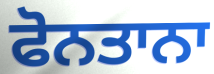
ਫੋਨਤਾਨਾ